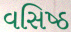
વસિષ્‍ઠ